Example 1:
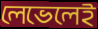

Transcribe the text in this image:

লেভেলেই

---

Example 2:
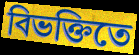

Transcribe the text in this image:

বিভক্তিতে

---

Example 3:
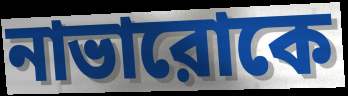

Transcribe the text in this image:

নাভারোকে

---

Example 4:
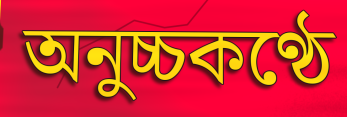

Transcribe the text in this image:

অনুচ্চকণ্ঠে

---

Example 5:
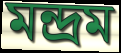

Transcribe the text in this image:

মন্দ্রম